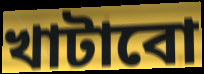
খাটাবো